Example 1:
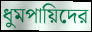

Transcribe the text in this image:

ধুমপায়িদের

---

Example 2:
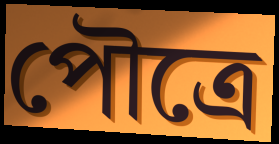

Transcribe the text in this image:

পৌত্রে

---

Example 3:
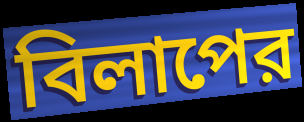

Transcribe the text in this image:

বিলাপের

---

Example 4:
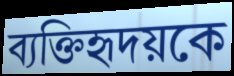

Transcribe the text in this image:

ব্যক্তিহৃদয়কে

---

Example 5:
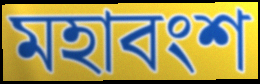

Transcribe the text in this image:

মহাবংশ